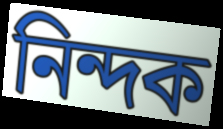
নিন্দক